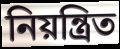
নিয়ন্ত্ৰিত